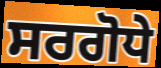
ਸਰਗੋਧੇ